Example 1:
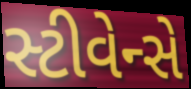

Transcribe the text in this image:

સ્ટીવેન્સે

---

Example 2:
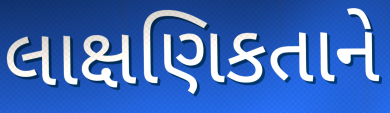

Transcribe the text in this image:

લાક્ષણિકતાને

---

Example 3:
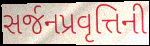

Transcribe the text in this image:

સર્જનપ્રવૃત્તિની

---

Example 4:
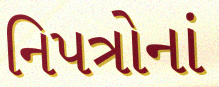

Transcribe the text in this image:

નિપત્રોનાં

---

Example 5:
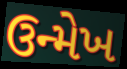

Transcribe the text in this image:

ઉન્મેખ